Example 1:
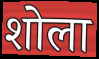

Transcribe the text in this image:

शोला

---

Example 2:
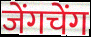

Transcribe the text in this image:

जेंगचेंग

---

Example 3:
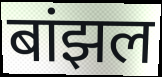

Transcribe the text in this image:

बांझल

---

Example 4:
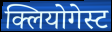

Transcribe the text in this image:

क्लियोगेस्ट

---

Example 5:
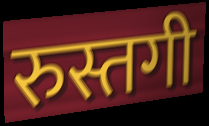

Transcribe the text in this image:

रुस्तगी